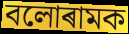
বলোৰামক